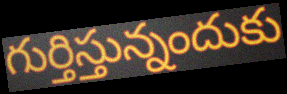
గుర్తిస్తున్నందుకు